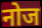
नोज